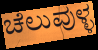
ಚೆಲುವುಳ್ಳ